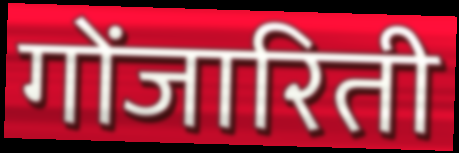
गोंजारिती